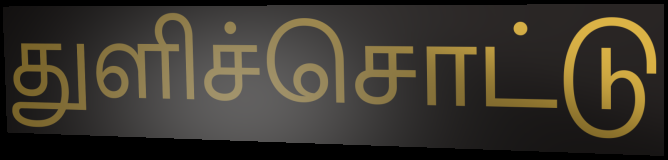
துளிச்சொட்டு